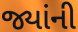
જ્યાંની